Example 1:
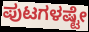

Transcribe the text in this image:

ಪುಟಗಳಷ್ಟೇ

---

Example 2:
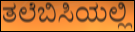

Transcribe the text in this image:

ತಲೆಬಿಸಿಯಲ್ಲಿ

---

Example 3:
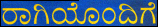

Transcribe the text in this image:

ರಾಗಿಯೊಂದಿಗೆ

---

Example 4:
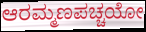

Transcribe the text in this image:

ಆರಮ್ಮಣಪಚ್ಚಯೋ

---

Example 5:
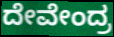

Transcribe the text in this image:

ದೇವೇಂದ್ರ